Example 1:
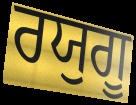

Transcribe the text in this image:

ਰਯੁਗੂ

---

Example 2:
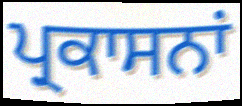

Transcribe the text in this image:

ਪ੍ਰਕਾਸਨਾਂ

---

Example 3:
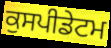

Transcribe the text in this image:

ਕੁਸਪੀਡੇਟਮ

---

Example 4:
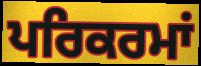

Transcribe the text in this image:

ਪਰਿਕਰਮਾਂ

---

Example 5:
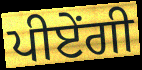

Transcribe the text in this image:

ਪੀਏਂਗੀ